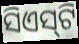
ସିଏସ୍‌ଟି